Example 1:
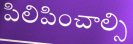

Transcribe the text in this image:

పిలిపించాల్సి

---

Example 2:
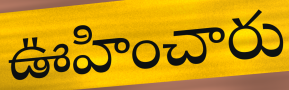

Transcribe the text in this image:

ఊహించారు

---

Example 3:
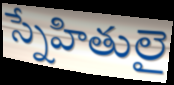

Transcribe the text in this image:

స్నేహితులై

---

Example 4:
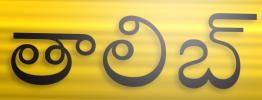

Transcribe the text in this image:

తాలిబ్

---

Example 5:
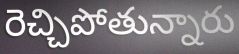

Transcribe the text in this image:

రెచ్చిపోతున్నారు